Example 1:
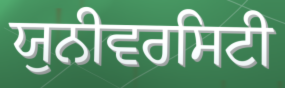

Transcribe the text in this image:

ਯੁਨੀਵਰਸਿਟੀ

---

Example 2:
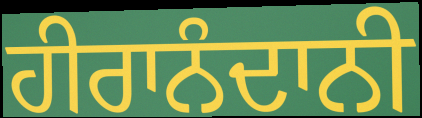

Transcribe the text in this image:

ਹੀਰਾਨੰਦਾਨੀ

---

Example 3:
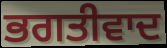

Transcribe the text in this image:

ਭਗਤੀਵਾਦ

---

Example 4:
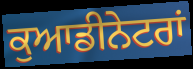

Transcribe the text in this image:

ਕੁਆਡੀਨੇਟਰਾਂ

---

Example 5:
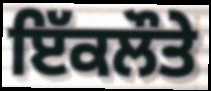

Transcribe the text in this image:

ਇੱਕਲੌਤੇ